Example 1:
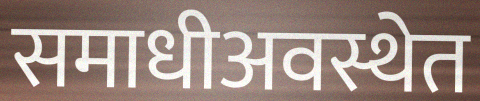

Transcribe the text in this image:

समाधीअवस्थेत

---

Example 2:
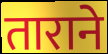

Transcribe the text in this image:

ताराने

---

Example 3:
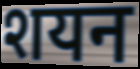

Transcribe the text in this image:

शयन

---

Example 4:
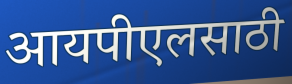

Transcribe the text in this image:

आयपीएलसाठी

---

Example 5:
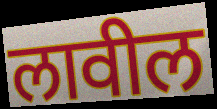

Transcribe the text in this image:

लावील